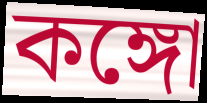
কঙ্গো